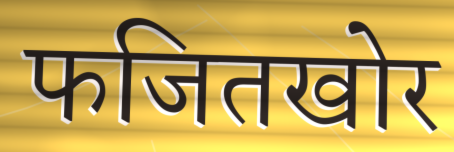
फजितखोर